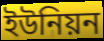
ইউনিয়ন